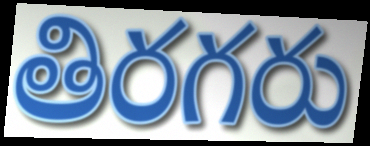
తిరగరు